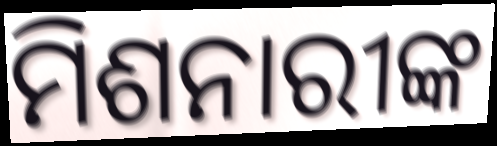
ମିଶନାରୀଙ୍କ